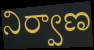
నిర్వాణ